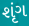
શૃંગ